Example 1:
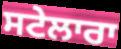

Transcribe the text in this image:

ਸਟੇਲਾਰਾ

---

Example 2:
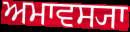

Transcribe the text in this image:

ਅਮਾਵਸ੍ਯਾ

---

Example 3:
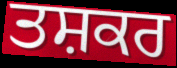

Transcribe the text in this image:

ਤਸ਼ਕਰ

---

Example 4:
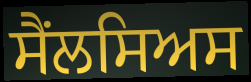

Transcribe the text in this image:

ਸੈਂਲਸਿਅਸ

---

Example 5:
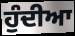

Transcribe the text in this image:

ਹੁੰਦੀਆ